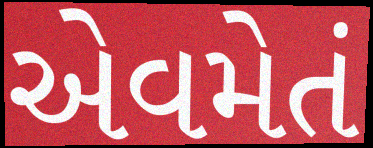
એવમેતં